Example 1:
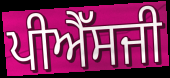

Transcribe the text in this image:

ਪੀਐੱਸਜੀ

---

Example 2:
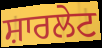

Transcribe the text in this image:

ਸ਼ਾਰਲੇਟ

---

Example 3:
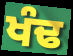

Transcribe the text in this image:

ਖੰਢ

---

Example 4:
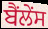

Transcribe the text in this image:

ਬੈਂਲੇਂਸ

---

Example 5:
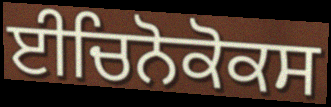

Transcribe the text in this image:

ਈਚਿਨੋਕੋਕਸ